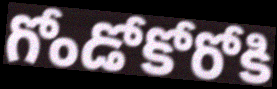
గోండోకోరోకి